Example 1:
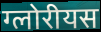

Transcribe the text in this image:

ग्लोरीयस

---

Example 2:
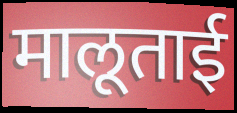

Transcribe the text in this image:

मालूताई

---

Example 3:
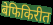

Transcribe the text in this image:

बेफिकिरीत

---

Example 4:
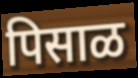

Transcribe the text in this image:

पिसाळ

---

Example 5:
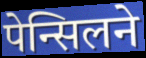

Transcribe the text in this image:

पेन्सिलने